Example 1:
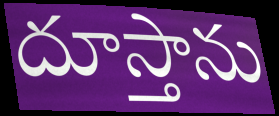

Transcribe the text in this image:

దూస్తాను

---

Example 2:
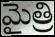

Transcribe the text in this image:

మైత్రి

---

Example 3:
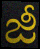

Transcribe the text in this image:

జీ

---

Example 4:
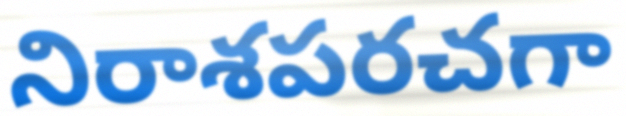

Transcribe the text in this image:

నిరాశపరచగా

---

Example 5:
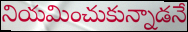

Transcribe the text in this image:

నియమించుకున్నాడనే